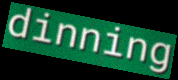
dinning